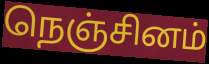
நெஞ்சினம்